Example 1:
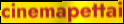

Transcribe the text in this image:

cinemapettai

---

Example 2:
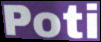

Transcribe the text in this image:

Poti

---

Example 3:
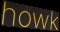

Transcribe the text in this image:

howk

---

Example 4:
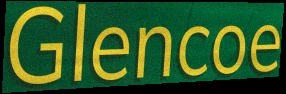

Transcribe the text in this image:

Glencoe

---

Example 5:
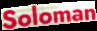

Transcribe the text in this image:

Soloman